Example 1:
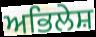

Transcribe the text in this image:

ਅਭਿਲੇਸ਼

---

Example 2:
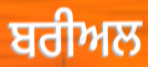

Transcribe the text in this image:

ਬਰੀਅਲ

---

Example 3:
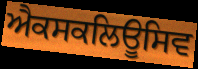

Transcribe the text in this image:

ਐਕਸਕਲਿਊਸਿਵ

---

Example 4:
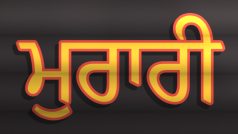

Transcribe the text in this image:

ਮੁਰਾਰੀ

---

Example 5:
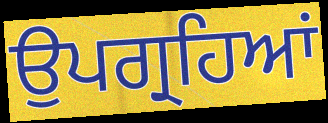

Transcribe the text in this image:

ਉਪਗ੍ਰਹਿਆਂ